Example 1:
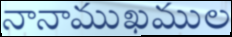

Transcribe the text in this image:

నానాముఖముల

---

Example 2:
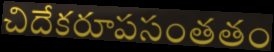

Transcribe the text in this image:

చిదేకరూపసంతతం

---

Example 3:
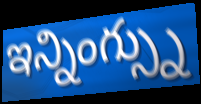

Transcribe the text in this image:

ఇన్నింగ్స్ను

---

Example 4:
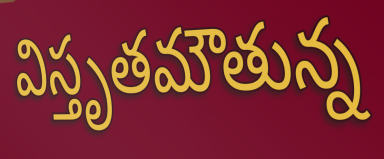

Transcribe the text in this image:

విస్తృతమౌతున్న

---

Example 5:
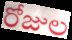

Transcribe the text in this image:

రోజుల